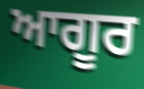
ਆਗੂਰ